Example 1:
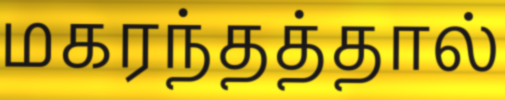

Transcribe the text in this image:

மகரந்தத்தால்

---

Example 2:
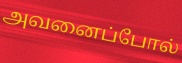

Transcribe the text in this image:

அவனைப்போல்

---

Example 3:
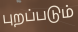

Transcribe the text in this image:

புறப்படும்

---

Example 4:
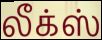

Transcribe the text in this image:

லீக்ஸ்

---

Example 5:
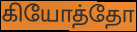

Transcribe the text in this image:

கியோத்தோ